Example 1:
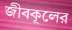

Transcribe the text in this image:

জীবকূলের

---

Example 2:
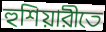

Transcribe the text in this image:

হুশিয়ারীতে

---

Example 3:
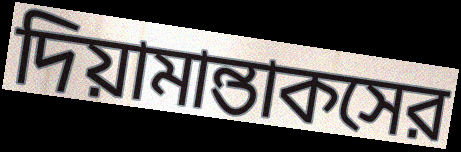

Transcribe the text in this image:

দিয়ামান্তাকসের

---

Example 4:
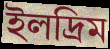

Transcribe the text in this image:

ইলদ্রিম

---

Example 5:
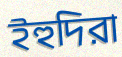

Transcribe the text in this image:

ইহুদিরা